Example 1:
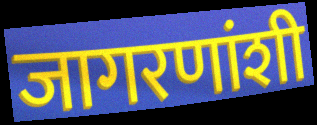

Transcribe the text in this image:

जागरणांशी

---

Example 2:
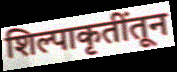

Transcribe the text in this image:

शिल्पाकृतींतून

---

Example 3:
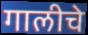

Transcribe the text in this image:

गालीचे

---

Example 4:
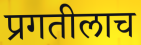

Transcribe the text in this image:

प्रगतीलाच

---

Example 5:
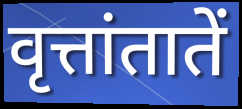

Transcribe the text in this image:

वृत्तांतातें